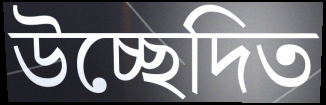
উচ্ছেদিত